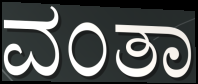
ವಂತಾ